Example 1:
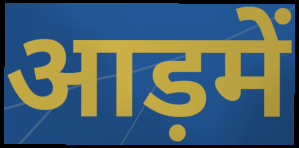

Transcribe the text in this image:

आड़में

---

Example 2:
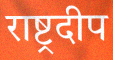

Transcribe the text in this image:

राष्ट्रदीप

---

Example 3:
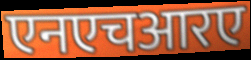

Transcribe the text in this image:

एनएचआरए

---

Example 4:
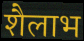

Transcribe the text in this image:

शैलाभ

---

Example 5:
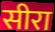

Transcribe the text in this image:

सीरा